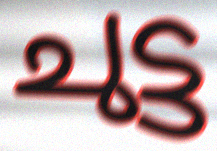
ചുട്ട